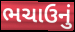
ભચાઉનું